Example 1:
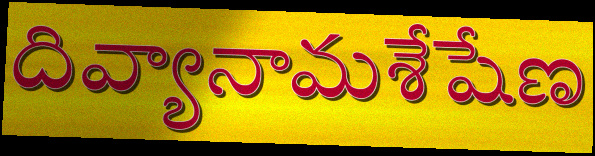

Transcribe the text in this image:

దివ్యానామశేషేణ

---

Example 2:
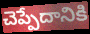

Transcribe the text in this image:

చెప్పేదానికి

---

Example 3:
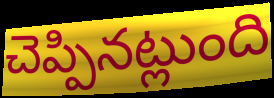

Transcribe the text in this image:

చెప్పినట్లుంది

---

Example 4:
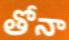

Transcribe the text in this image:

తోనా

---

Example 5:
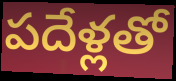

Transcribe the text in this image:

పదేళ్లతో